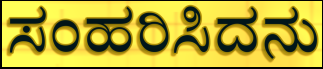
ಸಂಹರಿಸಿದನು